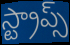
స్ట్రాప్స్